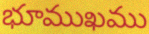
భూముఖము